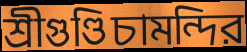
শ্রীগুণ্ডিচামন্দির